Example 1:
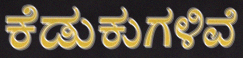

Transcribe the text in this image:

ಕೆಡುಕುಗಳಿವೆ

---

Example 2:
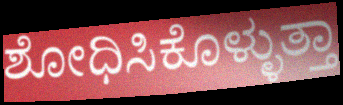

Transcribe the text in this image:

ಶೋಧಿಸಿಕೊಳ್ಳುತ್ತಾ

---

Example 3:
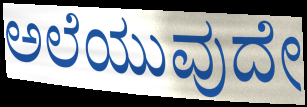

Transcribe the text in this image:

ಅಲೆಯುವುದೇ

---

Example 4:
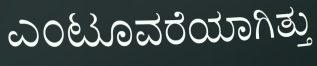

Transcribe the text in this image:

ಎಂಟೂವರೆಯಾಗಿತ್ತು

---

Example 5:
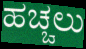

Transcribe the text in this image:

ಹಚ್ಚಲು